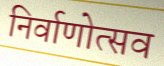
निर्वाणोत्सव